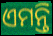
ଏମନ୍ତି